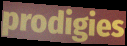
prodigies